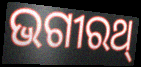
ଭଗୀରଥ୍